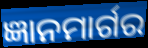
ଜ୍ଞାନମାର୍ଗର